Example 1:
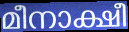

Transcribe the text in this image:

മീനാക്ഷീ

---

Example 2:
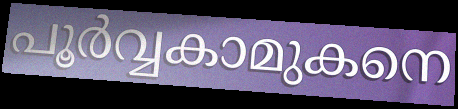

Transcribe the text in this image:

പൂർവ്വകാമുകനെ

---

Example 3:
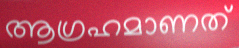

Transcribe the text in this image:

ആഗ്രഹമാണത്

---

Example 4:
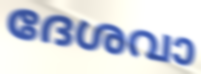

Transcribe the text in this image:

ദേശവാ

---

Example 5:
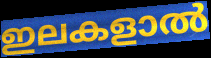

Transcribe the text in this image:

ഇലകളാൽ